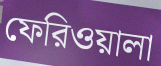
ফেরিওয়ালা